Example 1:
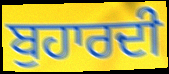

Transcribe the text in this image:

ਬੁਹਾਰਦੀ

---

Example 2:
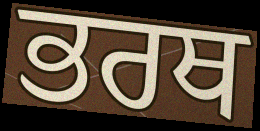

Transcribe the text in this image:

ਭਰਥ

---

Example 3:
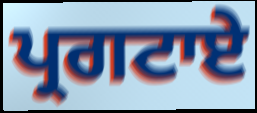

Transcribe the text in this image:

ਪ੍ਰਗਟਾਏ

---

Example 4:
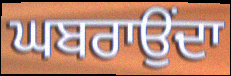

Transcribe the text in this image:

ਘਬਰਾਉਂਦਾ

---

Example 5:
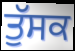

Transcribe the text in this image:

ਤੁੱਸਕ